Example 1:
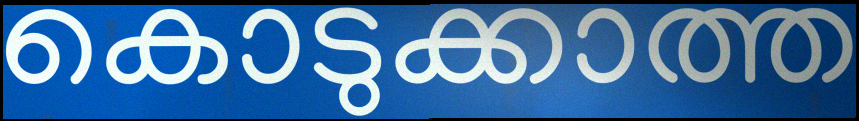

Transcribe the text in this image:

കൊടുക്കാത്ത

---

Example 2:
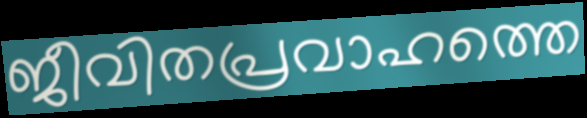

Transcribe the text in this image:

ജീവിതപ്രവാഹത്തെ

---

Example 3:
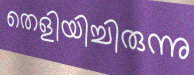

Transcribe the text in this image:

തെളിയിച്ചിരുന്നു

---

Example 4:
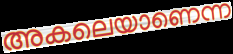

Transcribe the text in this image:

അകലെയാണെന്ന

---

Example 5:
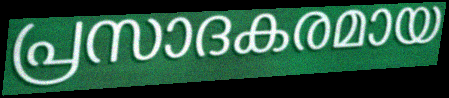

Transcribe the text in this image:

പ്രസാദകരമായ